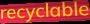
recyclable